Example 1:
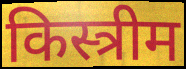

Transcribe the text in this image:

किस्त्रीम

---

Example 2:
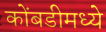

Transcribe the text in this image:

कोंबडीमध्ये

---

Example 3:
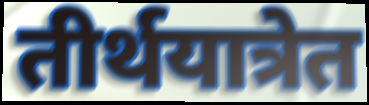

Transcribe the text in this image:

तीर्थयात्रेत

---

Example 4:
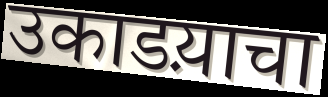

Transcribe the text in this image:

उकाडय़ाचा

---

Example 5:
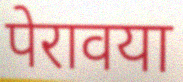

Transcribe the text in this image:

पेरावया